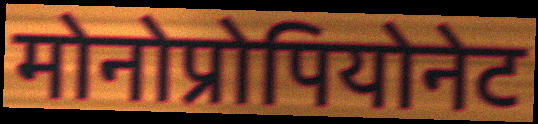
मोनोप्रोपियोनेट